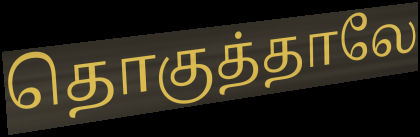
தொகுத்தாலே